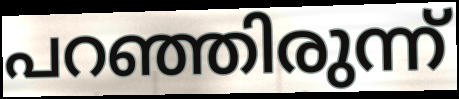
പറഞ്ഞിരുന്ന്